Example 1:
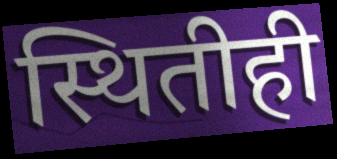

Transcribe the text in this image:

स्थितीही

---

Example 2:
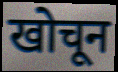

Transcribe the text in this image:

खोचून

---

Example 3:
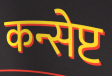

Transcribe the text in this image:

कन्सेप्ट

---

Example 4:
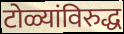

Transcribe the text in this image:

टोळ्यांविरुद्ध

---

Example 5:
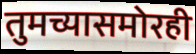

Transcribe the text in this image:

तुमच्यासमोरही